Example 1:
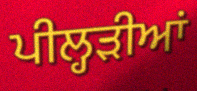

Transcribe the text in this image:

ਪੀਲ੍ਹੜੀਆਂ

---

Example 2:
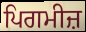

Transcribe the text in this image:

ਪਿਗਮੀਜ਼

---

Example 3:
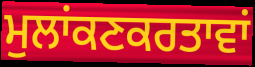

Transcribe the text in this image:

ਮੁਲਾਂਕਣਕਰਤਾਵਾਂ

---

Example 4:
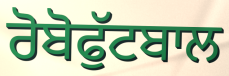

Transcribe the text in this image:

ਰੋਬੋਫੁੱਟਬਾਲ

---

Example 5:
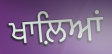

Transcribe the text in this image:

ਖਾਲ਼ਿਆਂ